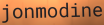
jonmodine